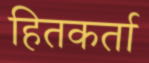
हितकर्ता